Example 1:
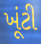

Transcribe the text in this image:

ખૂંટી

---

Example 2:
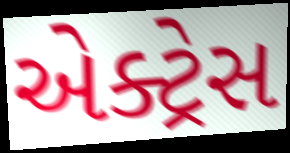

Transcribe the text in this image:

એક્ટ્રેસ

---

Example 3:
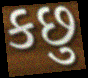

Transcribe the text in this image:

કછુ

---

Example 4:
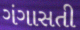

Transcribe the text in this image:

ગંગાસતી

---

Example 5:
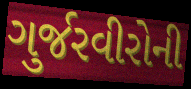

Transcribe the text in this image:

ગુર્જરવીરોની